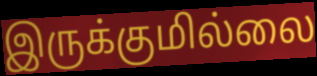
இருக்குமில்லை